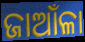
ଜାଆଁଳା